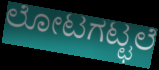
ಲೋಟಗಟ್ಟಲೆ